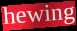
hewing